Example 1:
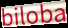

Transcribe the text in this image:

biloba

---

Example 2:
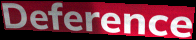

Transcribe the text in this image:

Deference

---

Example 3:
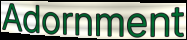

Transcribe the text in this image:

Adornment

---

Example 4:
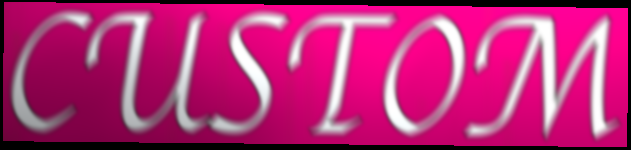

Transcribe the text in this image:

CUSTOM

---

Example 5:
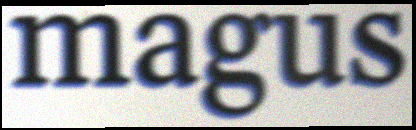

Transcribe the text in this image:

magus